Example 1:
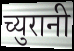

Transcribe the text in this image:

च्युरानी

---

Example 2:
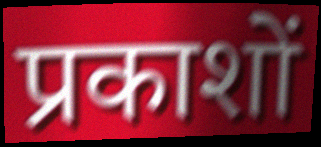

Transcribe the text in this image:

प्रकाशों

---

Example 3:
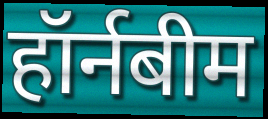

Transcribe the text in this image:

हॉर्नबीम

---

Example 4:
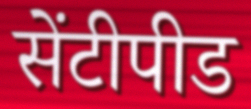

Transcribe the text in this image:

सेंटीपीड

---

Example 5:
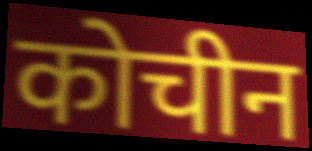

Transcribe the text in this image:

कोचीन